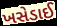
ખસેડાઈ